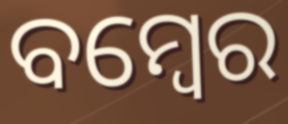
ବମ୍ୱେର